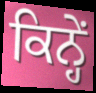
ਕਿਨ੍ਹੇਂ